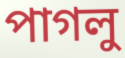
পাগলু